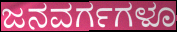
ಜನವರ್ಗಗಳೂ